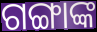
ଗଙ୍ଗାଙ୍କ